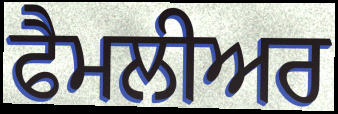
ਫੈਮਲੀਅਰ